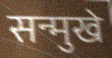
सन्मुखे